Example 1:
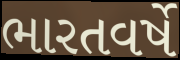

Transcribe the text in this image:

ભારતવર્ષે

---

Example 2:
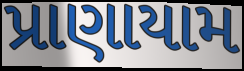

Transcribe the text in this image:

પ્રાણાયામ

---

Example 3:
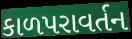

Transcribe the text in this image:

કાળપરાવર્તન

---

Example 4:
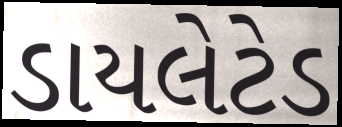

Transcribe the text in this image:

ડાયલેટેડ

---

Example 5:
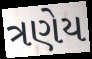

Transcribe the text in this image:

ત્રણેય